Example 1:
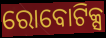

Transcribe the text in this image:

ରୋବୋଟିକ୍ସ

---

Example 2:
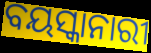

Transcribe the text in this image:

ବୟସ୍କାନାରୀ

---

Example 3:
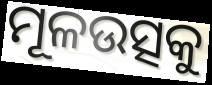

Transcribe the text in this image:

ମୂଳଉତ୍ସକୁ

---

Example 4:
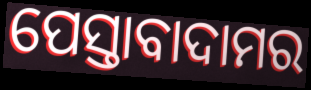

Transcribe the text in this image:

ପେସ୍ତାବାଦାମର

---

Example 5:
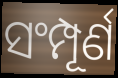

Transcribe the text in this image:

ସଂମ୍ପୂର୍ଣ